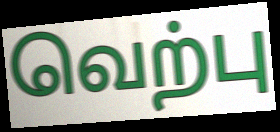
வெற்பு